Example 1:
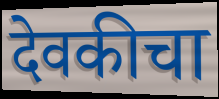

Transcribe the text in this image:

देवकीचा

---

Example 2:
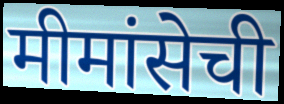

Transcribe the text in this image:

मीमांसेची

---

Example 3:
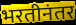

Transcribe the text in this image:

भरतीनंतर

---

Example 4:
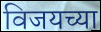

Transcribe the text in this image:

विजयच्या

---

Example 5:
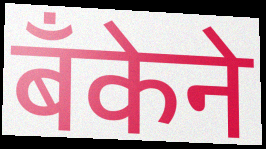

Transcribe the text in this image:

बँकेने